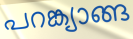
പറങ്ക്യാങ്ങ